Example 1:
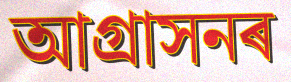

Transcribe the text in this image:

আগ্ৰাসনৰ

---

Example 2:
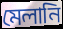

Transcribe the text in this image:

মেলানি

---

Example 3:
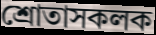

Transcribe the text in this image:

শ্ৰোতাসকলক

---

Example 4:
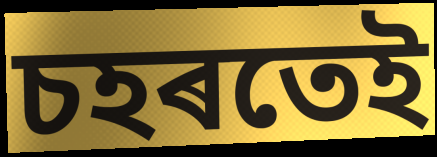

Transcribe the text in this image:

চহৰতেই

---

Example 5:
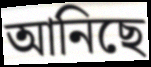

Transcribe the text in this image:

আনিছে